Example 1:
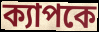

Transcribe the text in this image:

ক্যাপকে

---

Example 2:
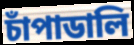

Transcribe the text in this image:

চাঁপাডালি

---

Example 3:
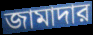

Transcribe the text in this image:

জামাদার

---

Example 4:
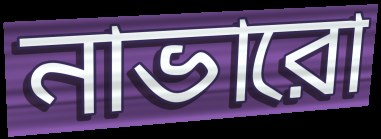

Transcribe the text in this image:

নাভারো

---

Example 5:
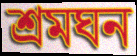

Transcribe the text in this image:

শ্রমঘন